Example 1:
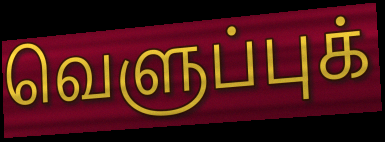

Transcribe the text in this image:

வெளுப்புக்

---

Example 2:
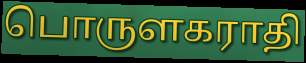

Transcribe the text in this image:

பொருளகராதி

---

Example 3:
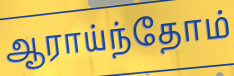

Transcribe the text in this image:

ஆராய்ந்தோம்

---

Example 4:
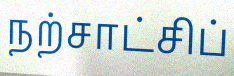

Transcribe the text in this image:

நற்சாட்சிப்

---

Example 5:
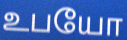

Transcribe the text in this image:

உபயோ